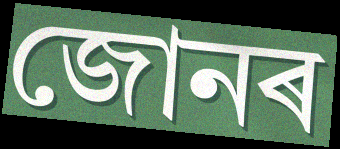
জোনৰ